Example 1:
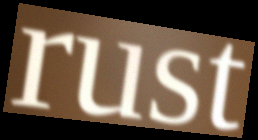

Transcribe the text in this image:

rust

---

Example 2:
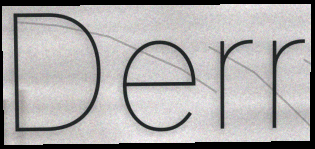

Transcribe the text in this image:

Derr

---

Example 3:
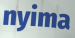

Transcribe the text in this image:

nyima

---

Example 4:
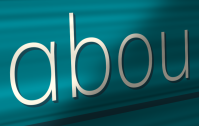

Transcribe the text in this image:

abou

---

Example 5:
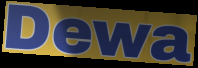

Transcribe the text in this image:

Dewa